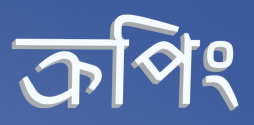
ক্রপিং